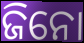
ଜିନୋ